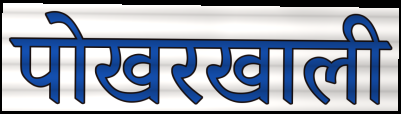
पोखरखाली